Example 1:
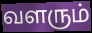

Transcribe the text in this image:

வளரும்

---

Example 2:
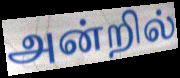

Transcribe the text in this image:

அன்றில்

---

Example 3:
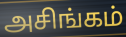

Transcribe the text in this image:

அசிங்கம்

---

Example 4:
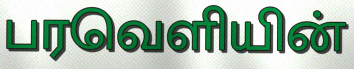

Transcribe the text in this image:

பரவெளியின்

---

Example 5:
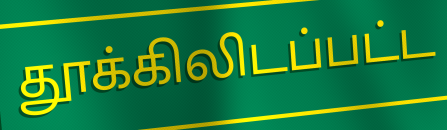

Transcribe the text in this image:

தூக்கிலிடப்பட்ட